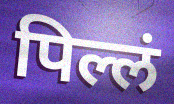
पिल्लं